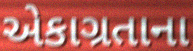
એકાગ્રતાના